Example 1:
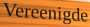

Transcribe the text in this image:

Vereenigde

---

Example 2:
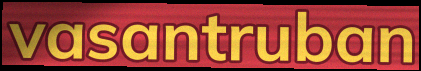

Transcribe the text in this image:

vasantruban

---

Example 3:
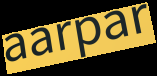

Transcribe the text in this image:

aarpar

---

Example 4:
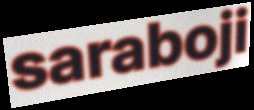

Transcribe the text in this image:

saraboji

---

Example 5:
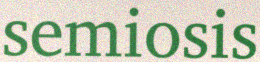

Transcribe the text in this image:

semiosis